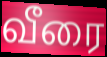
வீரை